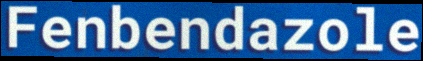
Fenbendazole